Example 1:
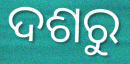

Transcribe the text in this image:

ଦଶରୁ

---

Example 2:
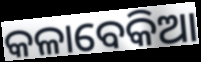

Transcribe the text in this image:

କଳାବେକିଆ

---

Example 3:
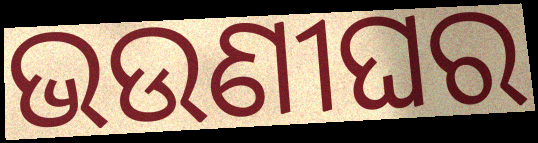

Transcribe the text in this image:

ଭଉଣୀଘର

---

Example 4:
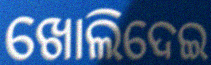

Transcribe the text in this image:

ଖୋଲିଦେଇ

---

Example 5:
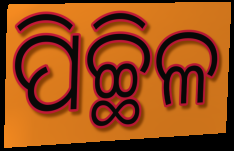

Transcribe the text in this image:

ପିଚ୍ଛିଳ